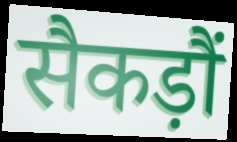
सैकड़ौं